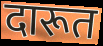
दारूत